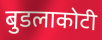
बुडलाकोटी